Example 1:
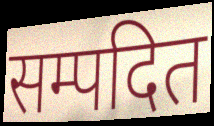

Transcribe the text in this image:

सम्पदित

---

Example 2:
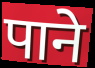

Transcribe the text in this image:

पाने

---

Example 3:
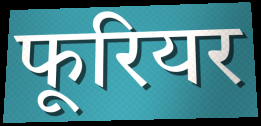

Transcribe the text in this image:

फूरियर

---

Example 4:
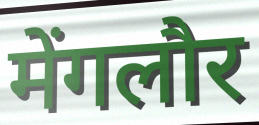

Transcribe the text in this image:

मेंगलौर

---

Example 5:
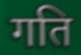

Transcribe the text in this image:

गति